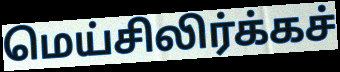
மெய்சிலிர்க்கச்